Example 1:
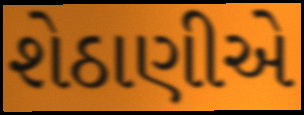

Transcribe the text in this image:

શેઠાણીએ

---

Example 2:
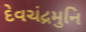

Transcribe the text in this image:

દેવચંદ્રમુનિ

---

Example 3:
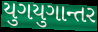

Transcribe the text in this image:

યુગયુગાન્તર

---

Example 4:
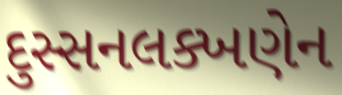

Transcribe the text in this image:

દુસ્સનલક્ખણેન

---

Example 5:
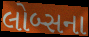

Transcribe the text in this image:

લોબ્સના